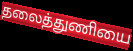
தலைத்துணியை